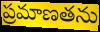
ప్రమాణతను